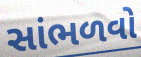
સાંભળવો